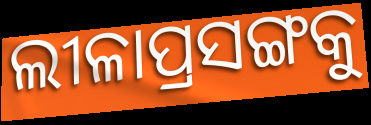
ଲୀଳାପ୍ରସଙ୍ଗକୁ